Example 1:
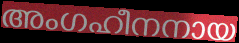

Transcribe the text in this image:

അംഗഹീനനായ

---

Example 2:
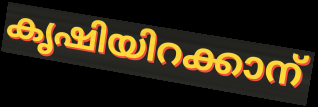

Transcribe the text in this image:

കൃഷിയിറക്കാന്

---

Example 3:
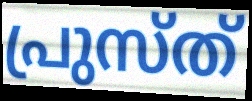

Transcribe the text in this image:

പ്രുസ്ത്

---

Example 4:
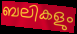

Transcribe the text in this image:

ബലികളും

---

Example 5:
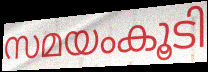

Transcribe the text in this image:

സമയംകൂടി